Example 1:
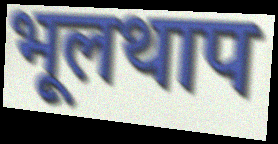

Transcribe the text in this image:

भूलथाप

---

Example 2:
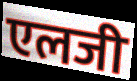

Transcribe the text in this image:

एलजी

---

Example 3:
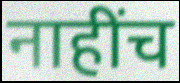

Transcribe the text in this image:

नाहींच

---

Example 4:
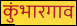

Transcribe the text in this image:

कुंभारगाव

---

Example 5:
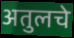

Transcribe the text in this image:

अतुलचे